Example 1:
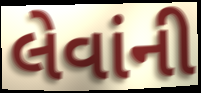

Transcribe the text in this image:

લેવાંની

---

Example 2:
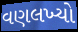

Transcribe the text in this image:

વણલખ્યો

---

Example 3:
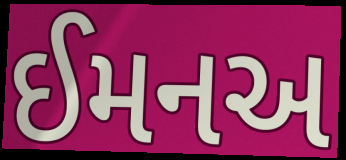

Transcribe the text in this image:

ઈમનઅ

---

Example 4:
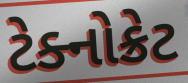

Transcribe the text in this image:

ટેક્નોક્રેટ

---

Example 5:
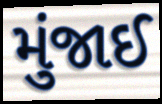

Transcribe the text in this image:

મુંજાઈ